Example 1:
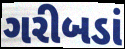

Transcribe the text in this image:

ગરીબડાં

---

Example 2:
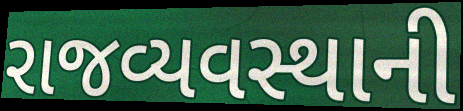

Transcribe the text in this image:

રાજવ્યવસ્થાની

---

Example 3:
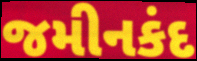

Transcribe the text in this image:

જમીનકંદ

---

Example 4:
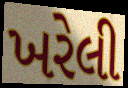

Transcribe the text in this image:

ખરેલી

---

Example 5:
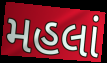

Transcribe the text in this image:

મહલાં